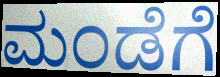
ಮಂಡೆಗೆ